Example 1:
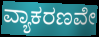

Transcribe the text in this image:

ವ್ಯಾಕರಣವೇ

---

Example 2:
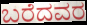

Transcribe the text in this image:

ಬರೆದವರ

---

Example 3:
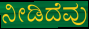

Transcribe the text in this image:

ನೀಡಿದೆವು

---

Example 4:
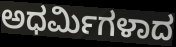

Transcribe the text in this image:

ಅಧರ್ಮಿಗಳಾದ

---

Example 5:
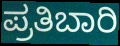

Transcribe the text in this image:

ಪ್ರತಿಬಾರಿ